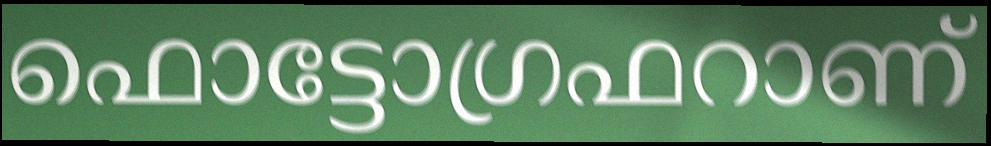
ഫൊട്ടോഗ്രഫറാണ്